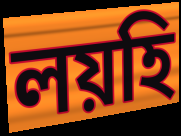
লয়হি